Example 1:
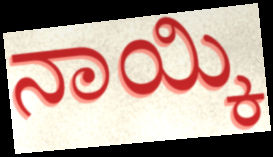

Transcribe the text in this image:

ನಾಯ್ಕಿ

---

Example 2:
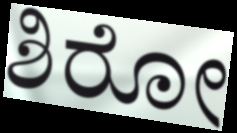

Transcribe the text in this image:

ಶಿರೋ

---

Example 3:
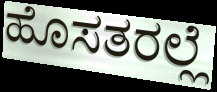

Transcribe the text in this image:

ಹೊಸತರಲ್ಲೆ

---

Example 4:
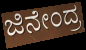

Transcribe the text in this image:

ಜಿನೇಂದ್ರ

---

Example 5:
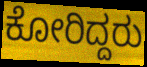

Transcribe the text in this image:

ಕೋರಿದ್ದರು